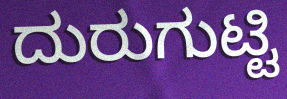
ದುರುಗುಟ್ಟಿ